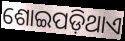
ଶୋଇପଡ଼ିଥାଏ